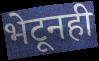
भेटूनही